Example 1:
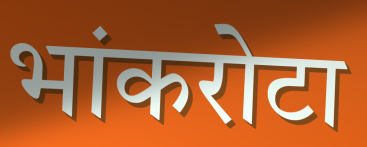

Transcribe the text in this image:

भांकरोटा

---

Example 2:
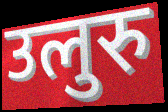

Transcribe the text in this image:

उलुरु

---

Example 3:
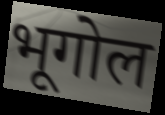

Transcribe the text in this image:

भूगोल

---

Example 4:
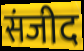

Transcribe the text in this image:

संजीद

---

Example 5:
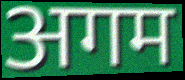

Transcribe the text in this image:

अगम